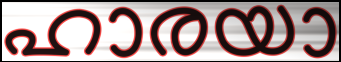
ഹാരയാ